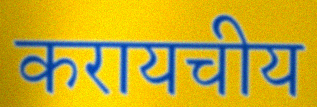
करायचीय